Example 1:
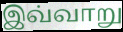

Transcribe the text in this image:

இவ்வாறு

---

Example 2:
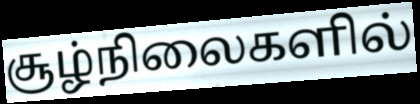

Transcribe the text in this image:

சூழ்நிலைகளில்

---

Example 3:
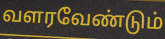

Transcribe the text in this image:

வளரவேண்டும்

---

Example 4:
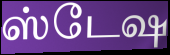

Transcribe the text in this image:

ஸ்டேஷ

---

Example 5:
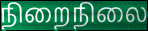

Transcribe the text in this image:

நிறைநிலை